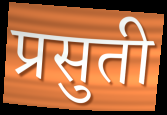
प्रसुती